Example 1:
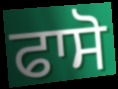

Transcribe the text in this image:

ਫਾਸੋ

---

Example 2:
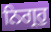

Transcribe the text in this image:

ਨਿਗ੍ਰਹੁ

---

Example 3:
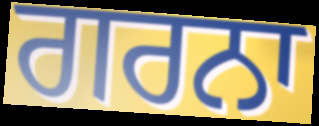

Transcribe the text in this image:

ਗਰਨਾ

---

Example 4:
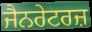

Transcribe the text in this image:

ਜੈਨਰੇਟਰਜ਼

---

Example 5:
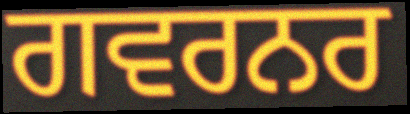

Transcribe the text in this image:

ਗਵਰਨਰ